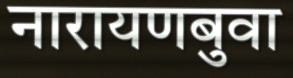
नारायणबुवा